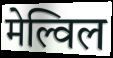
मेल्विल